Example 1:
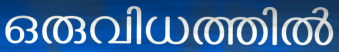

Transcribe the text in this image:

ഒരുവിധത്തിൽ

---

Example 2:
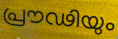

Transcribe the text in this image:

പ്രൗഢിയും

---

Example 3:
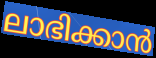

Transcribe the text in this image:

ലാഭിക്കാൻ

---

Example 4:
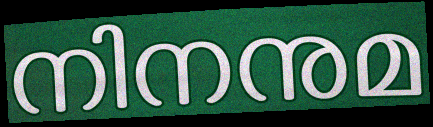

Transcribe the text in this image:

നിനനുമ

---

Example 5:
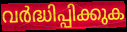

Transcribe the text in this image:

വർദ്ധിപ്പിക്കുക